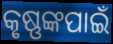
କୃଷ୍ଣଙ୍କପାଇଁ